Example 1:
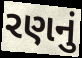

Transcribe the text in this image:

રણનું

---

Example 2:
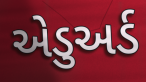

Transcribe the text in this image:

એડુઅર્ડ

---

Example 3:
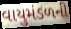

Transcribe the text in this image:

વાયુમંડળની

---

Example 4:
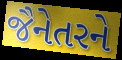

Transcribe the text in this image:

જૈનેતરને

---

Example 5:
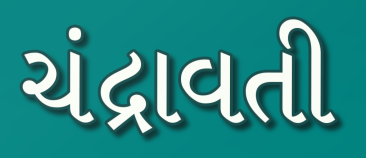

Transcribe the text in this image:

ચંદ્રાવતી